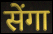
सेंगा